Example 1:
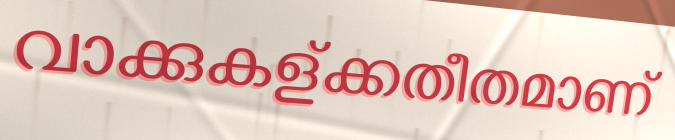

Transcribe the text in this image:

വാക്കുകള്ക്കതീതമാണ്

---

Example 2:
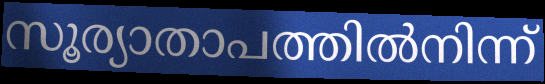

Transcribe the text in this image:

സൂര്യാതാപത്തിൽനിന്ന്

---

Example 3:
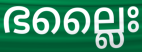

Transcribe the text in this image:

ഭല്ലൈഃ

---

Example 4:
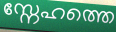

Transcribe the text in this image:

സ്നേഹത്തെ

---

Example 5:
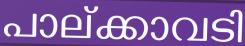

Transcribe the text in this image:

പാല്ക്കാവടി